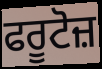
ਫਰੂਟੋਜ਼